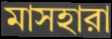
মাসহারা